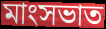
মাংসভাত